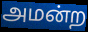
அமன்ற